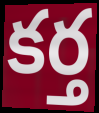
కర్త